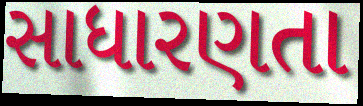
સાધારણતા